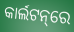
କାର୍ଲଟନ୍‌ରେ